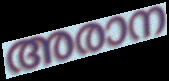
അരാന